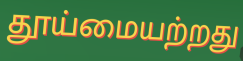
தூய்மையற்றது